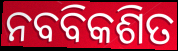
ନବବିକଶିତ